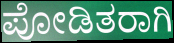
ಪೋಡಿತರಾಗಿ